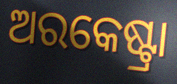
ଅରକେଷ୍ଟ୍ରା